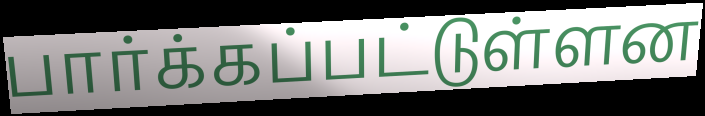
பார்க்கப்பட்டுள்ளன